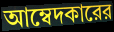
আম্বেদকারের